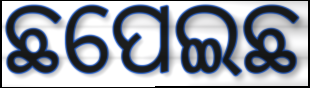
ଛପେଇଛ